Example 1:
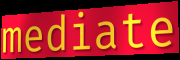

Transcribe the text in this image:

mediate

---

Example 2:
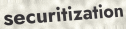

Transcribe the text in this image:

securitization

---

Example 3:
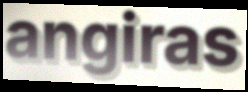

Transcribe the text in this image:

angiras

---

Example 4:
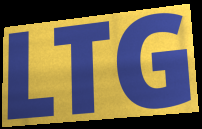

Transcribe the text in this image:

LTG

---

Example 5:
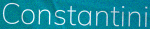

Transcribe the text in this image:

Constantini